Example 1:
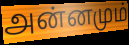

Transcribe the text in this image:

அன்னமும்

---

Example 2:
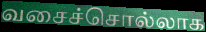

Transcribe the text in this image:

வசைச்சொல்லாக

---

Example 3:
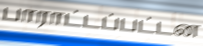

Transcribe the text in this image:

பாராட்டப்பட்டன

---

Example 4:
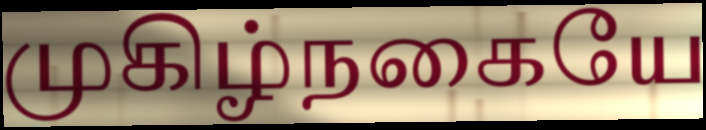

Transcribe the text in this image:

முகிழ்நகையே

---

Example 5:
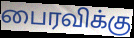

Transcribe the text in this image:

பைரவிக்கு